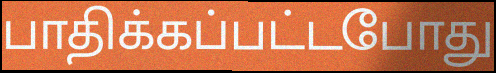
பாதிக்கப்பட்டபோது